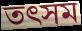
তৎসম